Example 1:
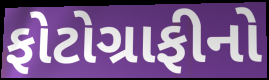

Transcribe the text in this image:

ફોટોગ્રાફીનો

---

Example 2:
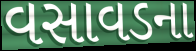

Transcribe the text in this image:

વસાવડના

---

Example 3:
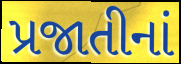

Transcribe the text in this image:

પ્રજાતીનાં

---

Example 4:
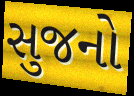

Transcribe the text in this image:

સુજનો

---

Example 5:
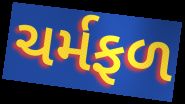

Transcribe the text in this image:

ચર્મફળ